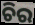
ଚିର